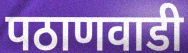
पठाणवाडी